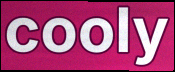
cooly